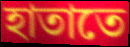
হাতাতে